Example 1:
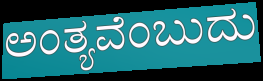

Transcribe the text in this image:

ಅಂತ್ಯವೆಂಬುದು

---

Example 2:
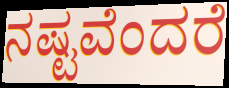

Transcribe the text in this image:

ನಷ್ಟವೆಂದರೆ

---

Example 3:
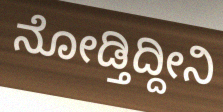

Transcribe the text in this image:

ನೋಡ್ತಿದ್ದೀನಿ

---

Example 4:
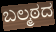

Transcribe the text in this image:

ಬಲ್ಮಠದ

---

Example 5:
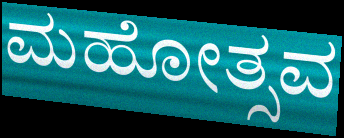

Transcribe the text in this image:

ಮಹೋತ್ಸವ